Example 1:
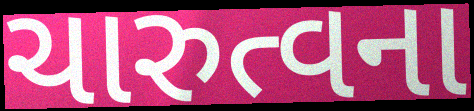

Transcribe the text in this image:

ચારુત્વના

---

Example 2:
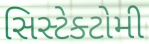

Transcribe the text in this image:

સિસ્ટેક્ટોમી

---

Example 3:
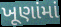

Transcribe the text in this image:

ખૂણાંમાં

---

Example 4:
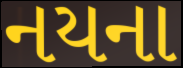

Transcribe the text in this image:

નયના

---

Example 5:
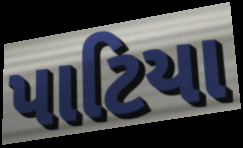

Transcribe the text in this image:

પાટિયા